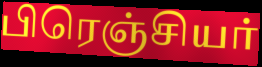
பிரெஞ்சியர்